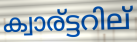
ക്വാര്ട്ടറില്